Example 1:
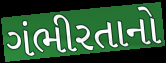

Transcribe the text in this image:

ગંભીરતાનો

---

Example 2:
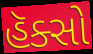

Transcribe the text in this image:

હૅક્સો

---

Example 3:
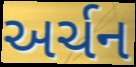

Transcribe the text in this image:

અર્ચન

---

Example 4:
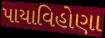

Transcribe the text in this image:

પાયાવિહોણા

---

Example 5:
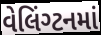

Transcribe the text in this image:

વેલિંગ્ટનમાં